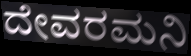
ದೇವರಮನಿ